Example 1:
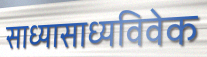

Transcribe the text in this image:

साध्यासाध्यविवेक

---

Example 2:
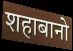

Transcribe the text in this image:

शहाबानो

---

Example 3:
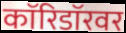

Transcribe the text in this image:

कॉरिडॉरवर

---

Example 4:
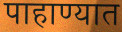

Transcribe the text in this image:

पाहाण्यात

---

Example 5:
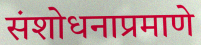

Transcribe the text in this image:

संशोधनाप्रमाणे